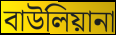
বাউলিয়ানা